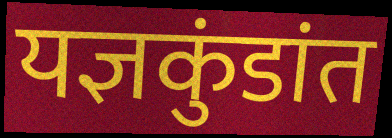
यज्ञकुंडांत